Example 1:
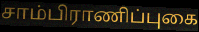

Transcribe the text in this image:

சாம்பிராணிப்புகை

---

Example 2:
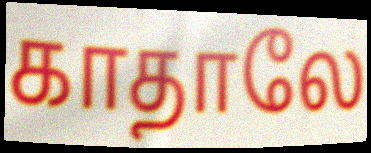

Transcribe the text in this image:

காதாலே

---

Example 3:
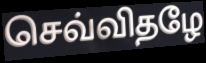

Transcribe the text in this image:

செவ்விதழே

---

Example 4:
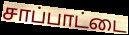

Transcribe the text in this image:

சாப்பாட்டை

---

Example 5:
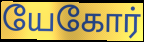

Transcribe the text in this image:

யேகோர்